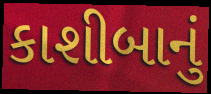
કાશીબાનું